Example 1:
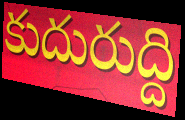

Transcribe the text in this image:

కుదురుద్ది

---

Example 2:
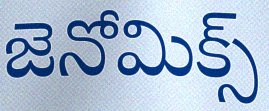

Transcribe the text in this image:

జెనోమిక్స్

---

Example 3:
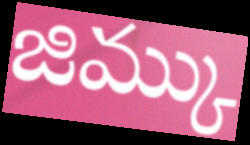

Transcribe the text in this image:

జిమ్కు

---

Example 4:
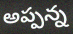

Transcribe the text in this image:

అప్పన్న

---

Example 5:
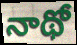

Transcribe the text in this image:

నాథో